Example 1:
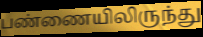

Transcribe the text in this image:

பண்ணையிலிருந்து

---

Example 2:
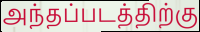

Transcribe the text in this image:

அந்தப்படத்திற்கு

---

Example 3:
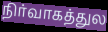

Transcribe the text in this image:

நிர்வாகத்துல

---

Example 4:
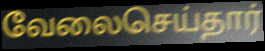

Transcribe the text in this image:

வேலைசெய்தார்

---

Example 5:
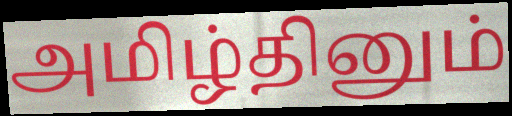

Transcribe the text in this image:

அமிழ்தினும்